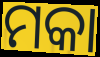
ମକା